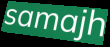
samajh